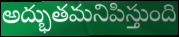
అద్భుతమనిపిస్తుంది